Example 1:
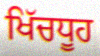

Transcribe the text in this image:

ਖਿੱਚਧੂਹ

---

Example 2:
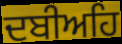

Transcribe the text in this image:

ਦਬੀਅਹਿ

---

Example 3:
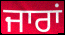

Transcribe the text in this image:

ਜਾਰਾਂ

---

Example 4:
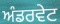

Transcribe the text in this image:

ਅੰਡਰਵੇਟ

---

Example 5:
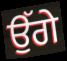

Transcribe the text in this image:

ਉੱਗੇ